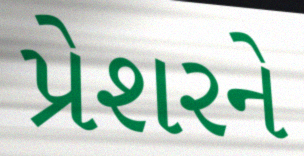
પ્રેશરને